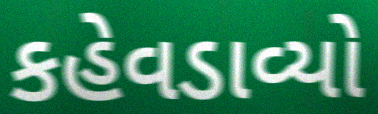
કહેવડાવ્યો